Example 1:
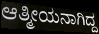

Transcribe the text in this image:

ಆತ್ಮೀಯನಾಗಿದ್ದ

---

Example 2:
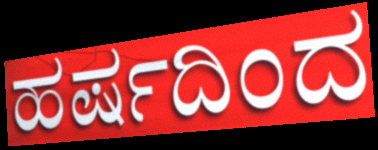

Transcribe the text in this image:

ಹರ್ಷದಿಂದ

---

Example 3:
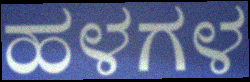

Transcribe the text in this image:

ಹಳಗಳ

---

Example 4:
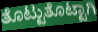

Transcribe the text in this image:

ತೊಟ್ಟುತೊಟ್ಟಾಗಿ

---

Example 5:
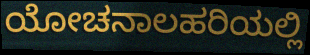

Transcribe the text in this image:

ಯೋಚನಾಲಹರಿಯಲ್ಲಿ